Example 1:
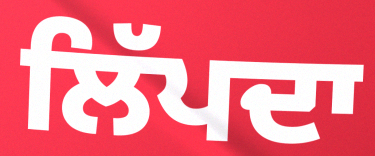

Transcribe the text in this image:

ਲਿੱਪਦਾ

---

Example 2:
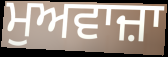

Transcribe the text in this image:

ਮੁਅਵਾਜ਼ਾ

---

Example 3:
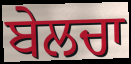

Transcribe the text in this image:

ਬੇਲਚਾ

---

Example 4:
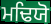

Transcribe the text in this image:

ਮਢਿਯੋ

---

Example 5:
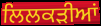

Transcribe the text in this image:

ਲਿਲਕੜੀਆਂ